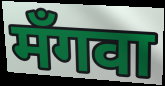
मँगवा